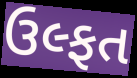
ઉલ્ફત